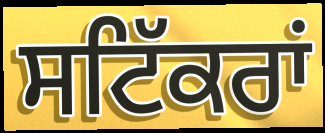
ਸਟਿੱਕਰਾਂ